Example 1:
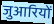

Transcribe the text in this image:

जुआरियों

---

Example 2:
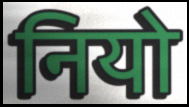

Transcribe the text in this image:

नियो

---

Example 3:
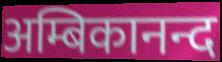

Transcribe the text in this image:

अम्बिकानन्द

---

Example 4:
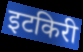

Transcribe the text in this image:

इटकिरी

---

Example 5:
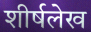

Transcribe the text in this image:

शीर्षलेख